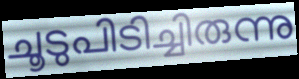
ചൂടുപിടിച്ചിരുന്നു